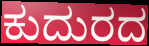
ಕುದುರದ